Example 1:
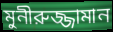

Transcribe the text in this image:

মুনীরুজ্জামান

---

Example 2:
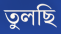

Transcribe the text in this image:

তুলছি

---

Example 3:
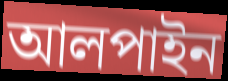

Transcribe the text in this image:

আলপাইন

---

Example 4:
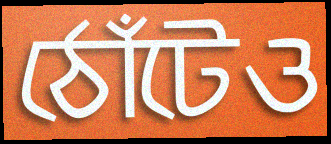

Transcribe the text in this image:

ঠোঁটেও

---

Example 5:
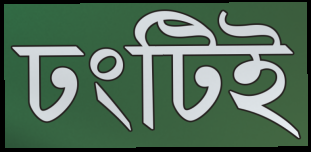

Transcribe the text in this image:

ঢংটিই